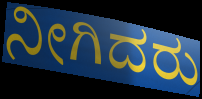
ನೀಗಿದರು